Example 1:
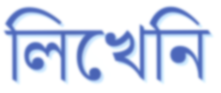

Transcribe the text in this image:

লিখেনি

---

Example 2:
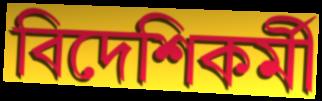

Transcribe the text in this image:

বিদেশিকর্মী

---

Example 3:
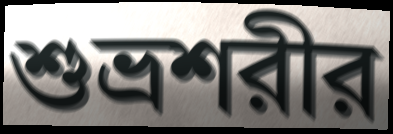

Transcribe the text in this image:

শুভ্রশরীর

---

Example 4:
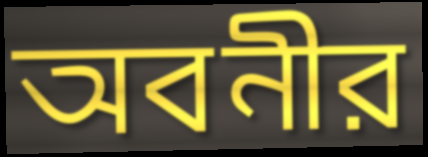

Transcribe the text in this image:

অবনীর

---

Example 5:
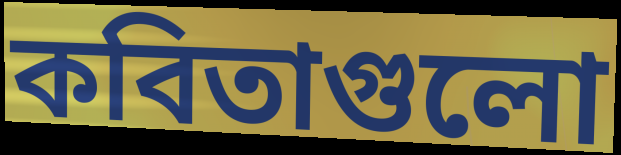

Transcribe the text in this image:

কবিতাগুলো